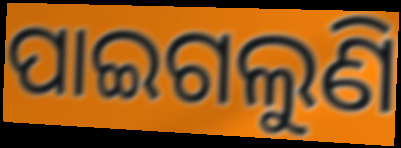
ପାଇଗଲୁଣି